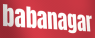
babanagar